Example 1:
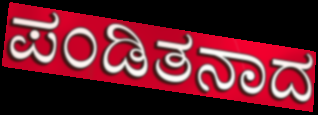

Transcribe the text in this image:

ಪಂಡಿತನಾದ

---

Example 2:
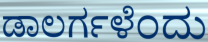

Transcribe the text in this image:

ಡಾಲರ್ಗಳೆಂದು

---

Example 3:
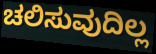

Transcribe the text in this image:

ಚಲಿಸುವುದಿಲ್ಲ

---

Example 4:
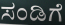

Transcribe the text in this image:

ಸಂಡಿಗೆ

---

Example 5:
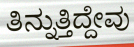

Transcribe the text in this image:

ತಿನ್ನುತ್ತಿದ್ದೇವು